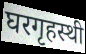
घरगृहस्थी